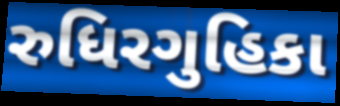
રુધિરગુહિકા